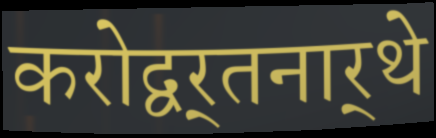
करोद्वर्तनार्थे